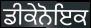
ਡੀਕੇਨੋਇਕ